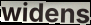
widens